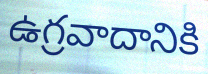
ఉగ్రవాదానికి